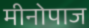
मीनोपाज